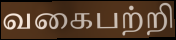
வகைபற்றி